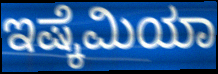
ಇಷ್ಕೆಮಿಯಾ